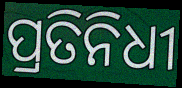
ପ୍ରତିନିଧୀ